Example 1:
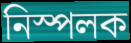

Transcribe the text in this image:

নিস্পলক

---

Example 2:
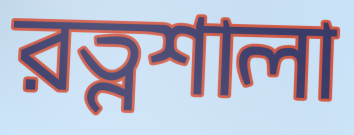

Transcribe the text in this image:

রত্নশালা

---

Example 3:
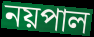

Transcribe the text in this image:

নয়পাল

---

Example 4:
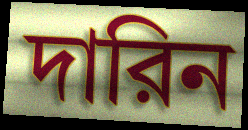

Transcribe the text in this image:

দারিন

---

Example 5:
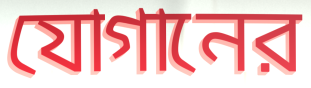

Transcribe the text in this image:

যোগানের